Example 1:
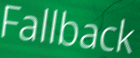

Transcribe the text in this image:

Fallback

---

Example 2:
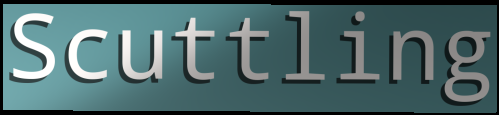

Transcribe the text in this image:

Scuttling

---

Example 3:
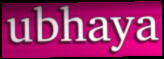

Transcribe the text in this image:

ubhaya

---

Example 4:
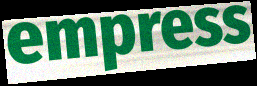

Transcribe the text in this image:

empress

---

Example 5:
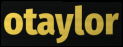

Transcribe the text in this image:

otaylor